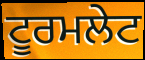
ਟੂਰਮਲੇਟ